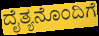
ದೈತ್ಯನೊಂದಿಗೆ